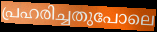
പ്രഹരിച്ചതുപോലെ